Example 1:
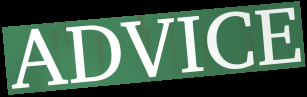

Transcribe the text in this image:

ADVICE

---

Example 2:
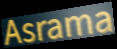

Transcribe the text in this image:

Asrama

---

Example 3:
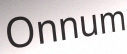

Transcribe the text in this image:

Onnum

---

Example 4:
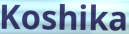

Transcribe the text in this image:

Koshika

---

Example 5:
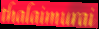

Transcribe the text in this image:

thalaimurai